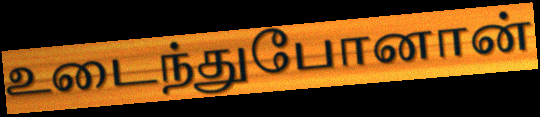
உடைந்துபோனான்